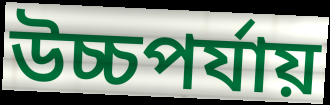
উচ্চপর্যায়